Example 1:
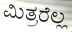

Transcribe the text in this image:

ಮಿತ್ರರೆಲ್ಲ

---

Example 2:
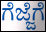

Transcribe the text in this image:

ಗೆಜ್ಜೆಗೆ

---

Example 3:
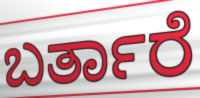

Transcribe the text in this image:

ಬರ್ತಾರೆ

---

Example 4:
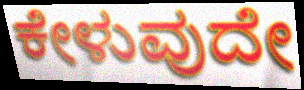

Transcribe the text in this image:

ಕೇಳುವುದೇ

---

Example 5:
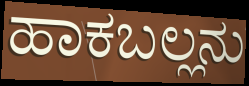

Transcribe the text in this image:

ಹಾಕಬಲ್ಲನು